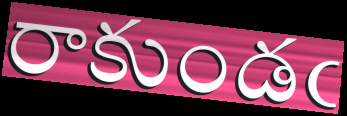
రాకుండఁ